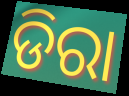
ଡିରା